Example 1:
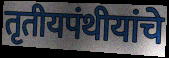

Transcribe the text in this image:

तृतीयपंथीयांचे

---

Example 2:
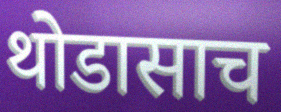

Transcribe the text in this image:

थोडासाच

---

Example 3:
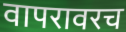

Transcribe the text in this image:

वापरावरच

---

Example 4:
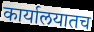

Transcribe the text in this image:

कार्यालयातच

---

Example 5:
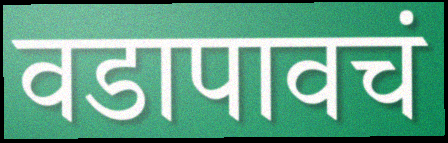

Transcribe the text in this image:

वडापावचं